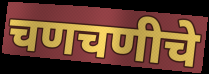
चणचणीचे